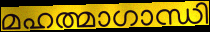
മഹത്മാഗാന്ധി